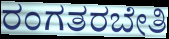
ರಂಗತರಬೇತಿ